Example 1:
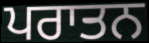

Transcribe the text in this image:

ਪਰਾਤਨ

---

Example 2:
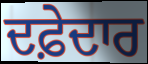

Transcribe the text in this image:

ਦਫ਼ੇਦਾਰ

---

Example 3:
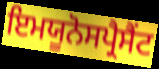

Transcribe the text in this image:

ਇਮਯੂਨੋਸਪ੍ਰੈਸੈਂਟ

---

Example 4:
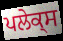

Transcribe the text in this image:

ਪਲੇਕ੍ਸ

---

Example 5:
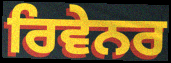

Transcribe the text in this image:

ਰਿਵੇਨਰ